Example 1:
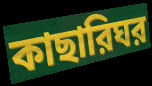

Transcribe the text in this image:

কাছারিঘর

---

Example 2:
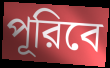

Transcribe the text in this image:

পূরিবে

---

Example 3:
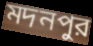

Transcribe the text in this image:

মদনপুর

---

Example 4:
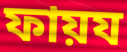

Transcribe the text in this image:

ফায়য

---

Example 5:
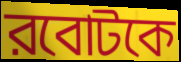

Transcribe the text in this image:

রবোটকে